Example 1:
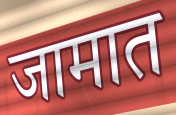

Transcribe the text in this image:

जामात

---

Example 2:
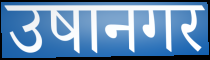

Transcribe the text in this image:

उषानगर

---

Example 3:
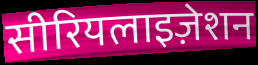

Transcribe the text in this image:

सीरियलाइज़ेशन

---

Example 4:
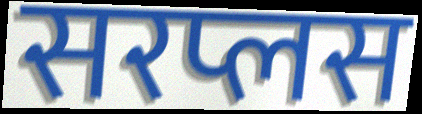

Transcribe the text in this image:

सरप्लस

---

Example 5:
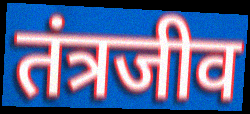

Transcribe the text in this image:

तंत्रजीव